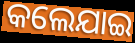
କଲେଯାଇ